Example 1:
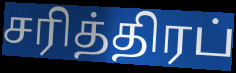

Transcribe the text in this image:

சரித்திரப்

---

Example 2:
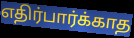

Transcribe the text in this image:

எதிர்பார்க்காத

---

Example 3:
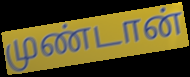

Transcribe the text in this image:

முண்டான்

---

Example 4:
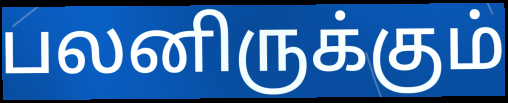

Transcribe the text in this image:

பலனிருக்கும்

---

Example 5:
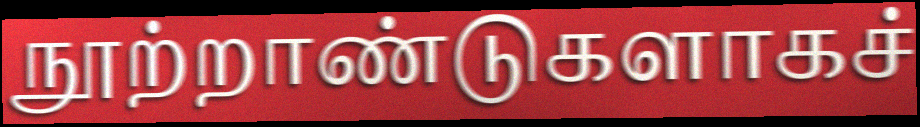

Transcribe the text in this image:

நூற்றாண்டுகளாகச்